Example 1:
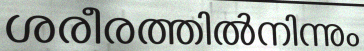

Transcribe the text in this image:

ശരീരത്തിൽനിന്നും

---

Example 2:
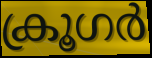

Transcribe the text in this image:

ക്രൂഗർ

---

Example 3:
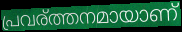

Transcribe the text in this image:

പ്രവര്ത്തനമായാണ്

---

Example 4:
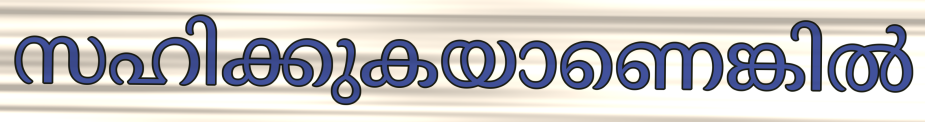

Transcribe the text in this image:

സഹിക്കുകയാണെങ്കിൽ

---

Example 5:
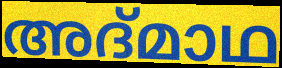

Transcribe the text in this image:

അദ്മാഥ